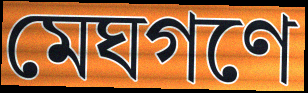
মেঘগণে